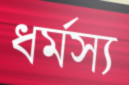
ধৰ্মস্য